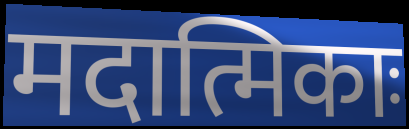
मदात्मिकाः